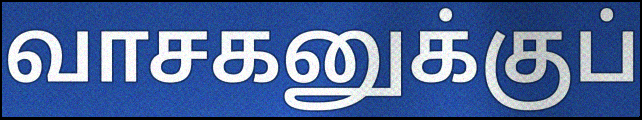
வாசகனுக்குப்